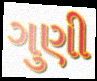
ગુણી